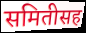
समितीसह